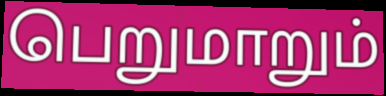
பெறுமாறும்